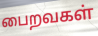
பைறவகள்